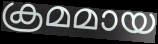
ക്രമമായ